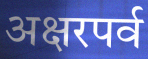
अक्षरपर्व